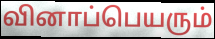
வினாப்பெயரும்